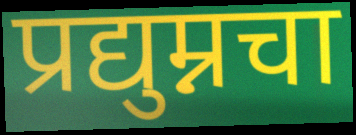
प्रद्युम्नचा